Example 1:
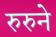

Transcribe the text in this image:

रुरुने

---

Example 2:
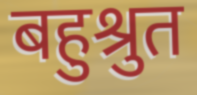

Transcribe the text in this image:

बहुश्रुत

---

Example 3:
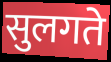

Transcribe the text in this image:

सुलगते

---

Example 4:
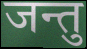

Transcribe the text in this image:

जन्तु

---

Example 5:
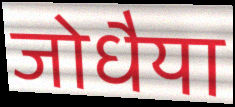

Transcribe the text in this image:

जोधैया